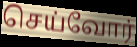
செய்வோர்